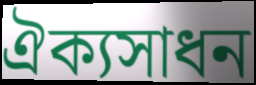
ঐক্যসাধন